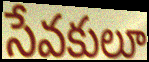
సేవకులూ